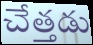
చేత్తడు